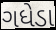
ગધેડા